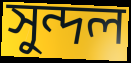
সুন্দল